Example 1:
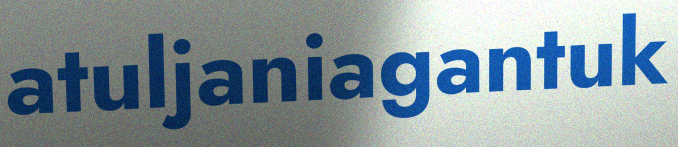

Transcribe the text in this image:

atuljaniagantuk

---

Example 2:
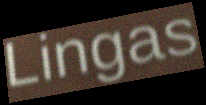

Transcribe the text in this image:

Lingas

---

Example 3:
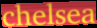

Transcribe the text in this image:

chelsea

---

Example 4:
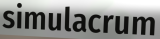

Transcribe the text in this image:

simulacrum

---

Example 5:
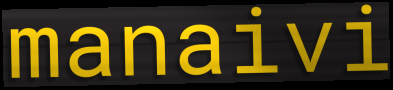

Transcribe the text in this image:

manaivi